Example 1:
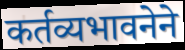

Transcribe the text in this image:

कर्तव्यभावनेने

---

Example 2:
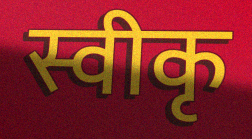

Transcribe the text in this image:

स्वीकृ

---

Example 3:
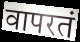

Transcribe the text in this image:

वापरतं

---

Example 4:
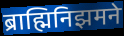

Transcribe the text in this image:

ब्राह्मिनिझमने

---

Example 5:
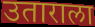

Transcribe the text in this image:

उताराला